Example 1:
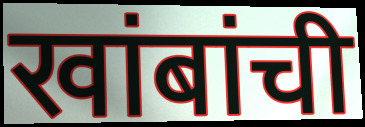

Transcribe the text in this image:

खांबांची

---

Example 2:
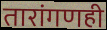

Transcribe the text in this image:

तारांगणही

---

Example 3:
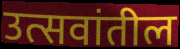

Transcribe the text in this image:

उत्सवांतील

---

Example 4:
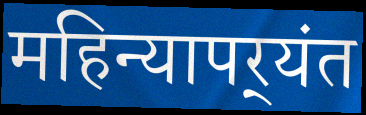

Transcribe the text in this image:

महिन्यापर्यंत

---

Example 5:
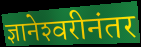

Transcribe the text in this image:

ज्ञानेश्वरीनंतर